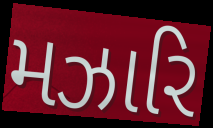
મઝારિ